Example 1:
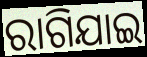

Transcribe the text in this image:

ରାଗିଯାଇ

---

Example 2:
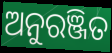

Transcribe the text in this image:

ଅନୁରଞ୍ଜିତ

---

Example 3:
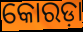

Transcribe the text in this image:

କୋରଡ଼ା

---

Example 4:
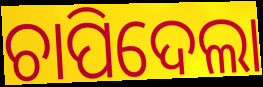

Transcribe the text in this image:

ଚାପିଦେଲା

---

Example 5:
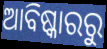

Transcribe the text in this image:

ଆବିଷ୍କାରରୁ